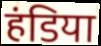
हंडिया